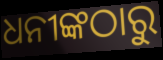
ଧନୀଙ୍କଠାରୁ